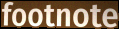
footnote